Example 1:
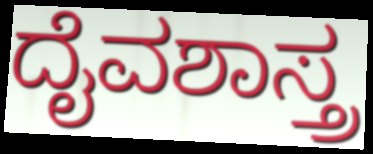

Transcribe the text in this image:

ದೈವಶಾಸ್ತ್ರ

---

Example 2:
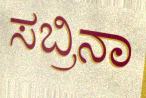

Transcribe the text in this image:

ಸಬ್ರಿನಾ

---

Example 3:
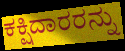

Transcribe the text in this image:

ಕಕ್ಷಿದಾರರನ್ನು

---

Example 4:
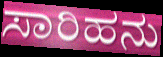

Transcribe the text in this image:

ಸಾರಿಹನು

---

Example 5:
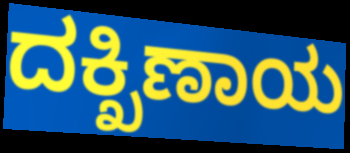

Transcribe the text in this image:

ದಕ್ಖಿಣಾಯ